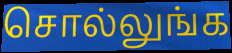
சொல்லுங்க